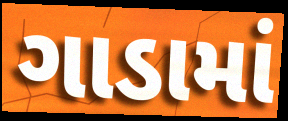
ગાડામાં